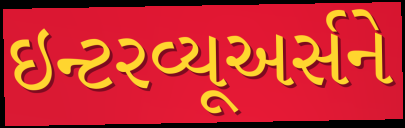
ઇન્ટરવ્યૂઅર્સને